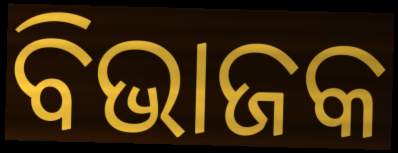
ବିଭାଜକ